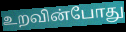
உறவின்போது